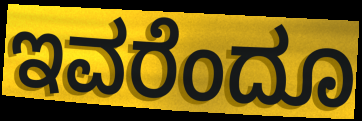
ಇವರೆಂದೂ